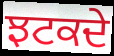
ਝਟਕਦੇ